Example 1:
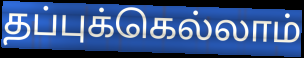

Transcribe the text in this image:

தப்புக்கெல்லாம்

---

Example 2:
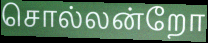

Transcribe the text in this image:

சொல்லன்றோ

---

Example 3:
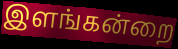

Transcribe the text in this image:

இளங்கன்றை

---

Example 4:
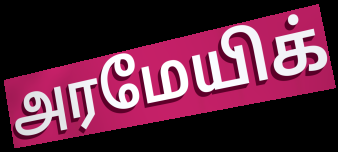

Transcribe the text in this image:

அரமேயிக்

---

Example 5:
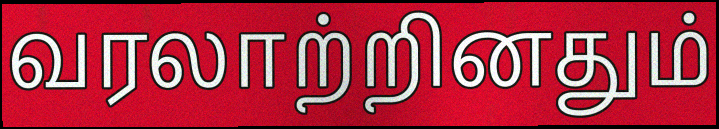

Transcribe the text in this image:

வரலாற்றினதும்